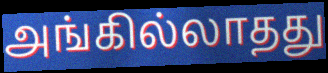
அங்கில்லாதது